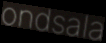
ondsala